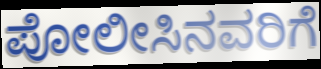
ಪೋಲೀಸಿನವರಿಗೆ